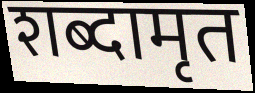
शब्दामृत